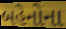
બહેનોના